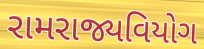
રામરાજ્યવિયોગ